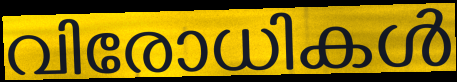
വിരോധികൾ